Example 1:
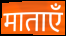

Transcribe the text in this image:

माताएँ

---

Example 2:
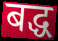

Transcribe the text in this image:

बद्ध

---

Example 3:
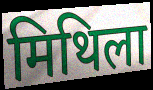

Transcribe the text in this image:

मिथिला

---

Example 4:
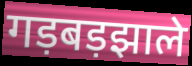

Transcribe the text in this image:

गड़बड़झाले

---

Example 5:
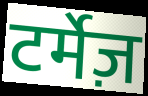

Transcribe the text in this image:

टर्मेज़